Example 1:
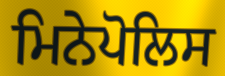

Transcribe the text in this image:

ਮਿਨੇਪੋਲਿਸ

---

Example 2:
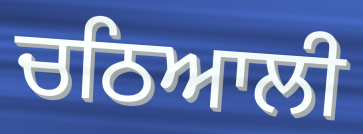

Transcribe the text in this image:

ਚਠਿਆਲੀ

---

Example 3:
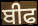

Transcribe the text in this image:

ਬੀਫ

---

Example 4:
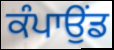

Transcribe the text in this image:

ਕੰਪਾਉਂਡ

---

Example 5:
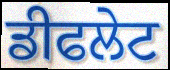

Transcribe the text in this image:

ਡੀਫਲੇਟ